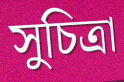
সুচিত্রা